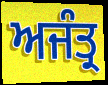
ਅਜੰਤ੍ਰ